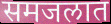
समजलात